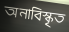
অনাবিস্কৃত